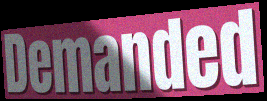
Demanded